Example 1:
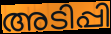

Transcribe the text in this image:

അടിപ്പി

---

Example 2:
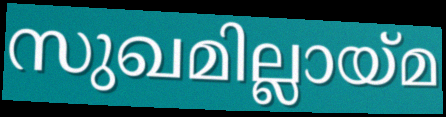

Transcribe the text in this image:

സുഖമില്ലായ്മ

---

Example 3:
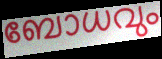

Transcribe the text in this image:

ബോധവും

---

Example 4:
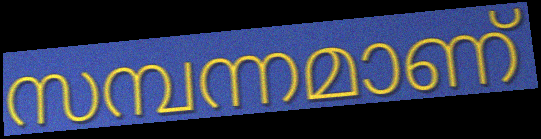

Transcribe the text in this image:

സമ്പന്നമാണ്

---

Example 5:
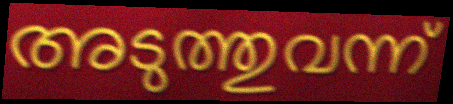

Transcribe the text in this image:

അടുത്തുവന്ന്